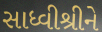
સાધ્વીશ્રીને